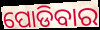
ପୋଡିବାର